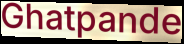
Ghatpande